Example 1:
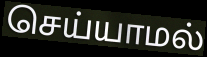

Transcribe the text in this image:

செய்யாமல்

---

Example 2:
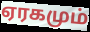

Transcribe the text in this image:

ஏரகமும்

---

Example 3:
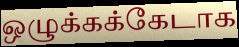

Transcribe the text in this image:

ஒழுக்கக்கேடாக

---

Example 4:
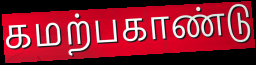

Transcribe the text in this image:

கமற்பகாண்டு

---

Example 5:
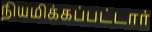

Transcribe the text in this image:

நியமிக்கப்பட்டார்